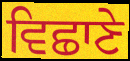
ਵਿਛਾਣੇ